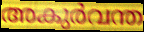
അകുർവന്ത